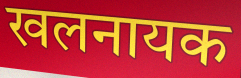
खलनायक